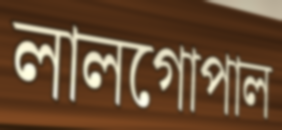
লালগোপাল